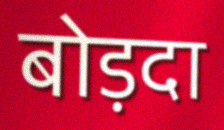
बोड़दा